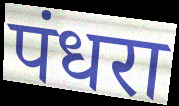
पंधरा